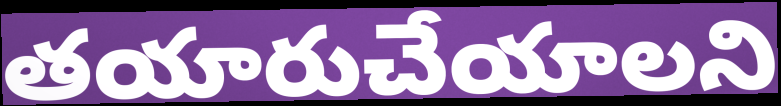
తయారుచేయాలని